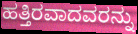
ಹತ್ತಿರವಾದವರನ್ನು